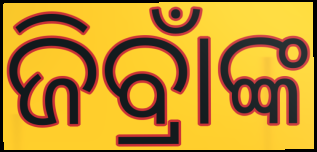
ଜିବ୍ରାଁଙ୍କ